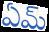
ఏమ్